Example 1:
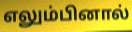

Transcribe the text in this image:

எலும்பினால்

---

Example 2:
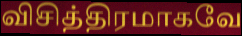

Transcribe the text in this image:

விசித்திரமாகவே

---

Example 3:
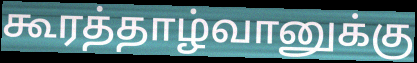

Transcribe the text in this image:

கூரத்தாழ்வானுக்கு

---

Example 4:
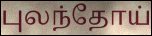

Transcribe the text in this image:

புலந்தோய்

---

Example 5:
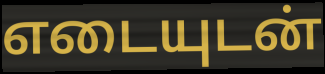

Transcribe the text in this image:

எடையுடன்